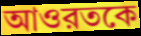
আওরতকে